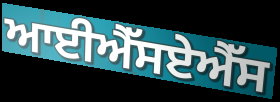
ਆਈਐੱਸਏਐੱਸ